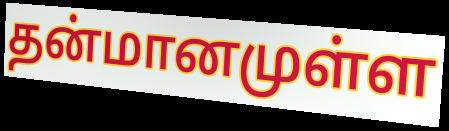
தன்மானமுள்ள